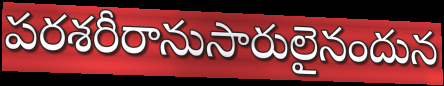
పరశరీరానుసారులైనందున